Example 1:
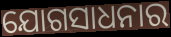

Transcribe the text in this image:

ଯୋଗସାଧନାର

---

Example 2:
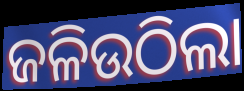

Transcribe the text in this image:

ଜଳିଉଠିଲା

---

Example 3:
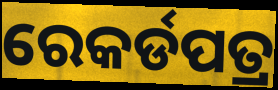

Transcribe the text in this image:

ରେକର୍ଡପତ୍ର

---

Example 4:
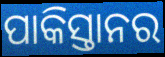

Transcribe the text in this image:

ପାକିସ୍ତାନର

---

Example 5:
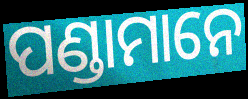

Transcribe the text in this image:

ପଣ୍ଡାମାନେ